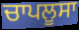
ਚਾਪਲੂਸਾ